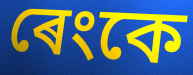
ৰেংকে